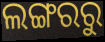
ଲଙ୍ଗରରୁ